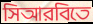
সিআরবিতে